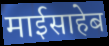
माईसाहेब